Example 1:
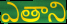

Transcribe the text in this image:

ఎతాని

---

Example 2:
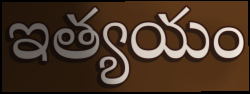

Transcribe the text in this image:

ఇత్యయం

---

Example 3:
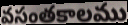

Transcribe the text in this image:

వసంతకాలము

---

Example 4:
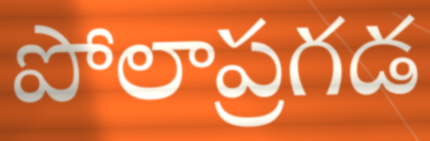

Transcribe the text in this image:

పోలాప్రగడ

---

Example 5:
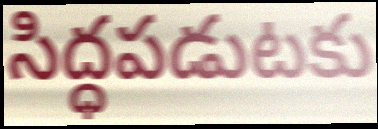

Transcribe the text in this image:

సిద్ధపడుటకు